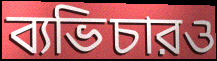
ব্যভিচারও